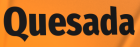
Quesada